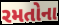
રમતોના